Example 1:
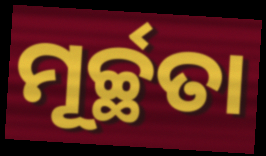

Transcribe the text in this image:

ମୂର୍ଚ୍ଛତା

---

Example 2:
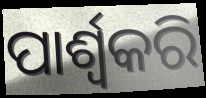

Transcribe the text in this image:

ପାର୍ଶ୍ଵକରି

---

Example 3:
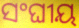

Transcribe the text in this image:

ସଂଘୀୟ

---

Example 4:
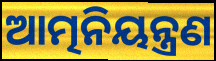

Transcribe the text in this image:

ଆତ୍ମନିୟନ୍ତ୍ରଣ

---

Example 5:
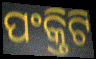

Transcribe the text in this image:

ପଂକ୍ତିଟି